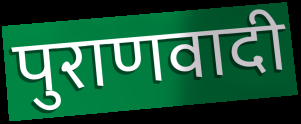
पुराणवादी